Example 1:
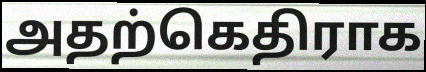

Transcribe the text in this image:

அதற்கெதிராக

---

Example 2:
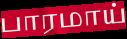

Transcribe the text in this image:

பாரமாய்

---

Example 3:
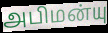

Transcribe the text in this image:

அபிமன்யு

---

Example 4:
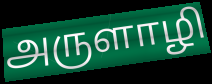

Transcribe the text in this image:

அருளாழி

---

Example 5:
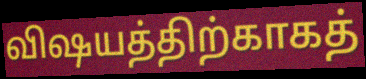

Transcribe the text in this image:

விஷயத்திற்காகத்